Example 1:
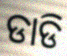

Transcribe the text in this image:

ଡାଡି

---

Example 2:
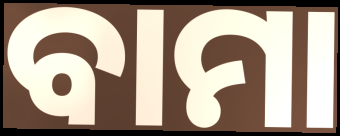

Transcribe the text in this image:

ବାମା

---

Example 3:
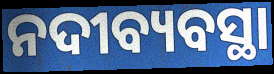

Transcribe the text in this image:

ନଦୀବ୍ୟବସ୍ଥା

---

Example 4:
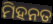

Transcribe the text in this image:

ମିହନତ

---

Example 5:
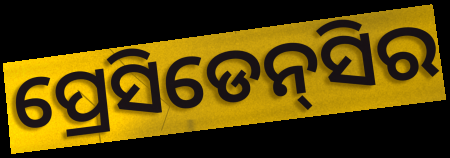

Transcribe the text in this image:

ପ୍ରେସିଡେନ୍‌ସିର